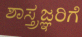
ಶಾಸ್ತ್ರಜ್ಞರಿಗೆ